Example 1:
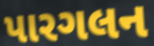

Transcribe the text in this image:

પારગલન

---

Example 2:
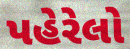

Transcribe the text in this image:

પહેરેલો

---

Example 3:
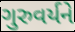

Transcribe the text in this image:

ગુરુવર્યને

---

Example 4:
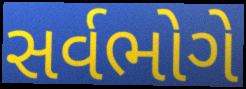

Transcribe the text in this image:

સર્વભોગે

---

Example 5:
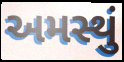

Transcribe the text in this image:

અમસ્થું